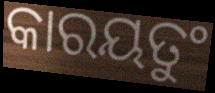
କାରୟତୁଂ